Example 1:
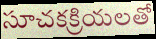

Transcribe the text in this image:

సూచకక్రియలతో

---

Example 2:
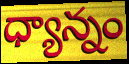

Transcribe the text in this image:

ధ్యాన్నం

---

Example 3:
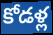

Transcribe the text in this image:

కోడళ్ల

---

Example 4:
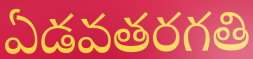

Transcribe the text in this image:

ఏడవతరగతి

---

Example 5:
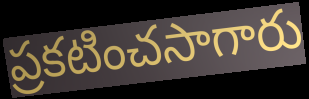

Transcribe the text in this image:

ప్రకటించసాగారు